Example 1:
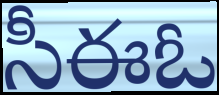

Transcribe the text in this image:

సీఈఓ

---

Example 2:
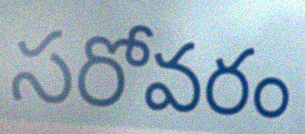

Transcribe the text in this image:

సరోవరం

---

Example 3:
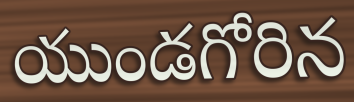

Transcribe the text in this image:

యుండగోరిన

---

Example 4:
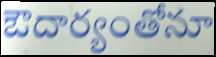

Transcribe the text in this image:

ఔదార్యంతోనూ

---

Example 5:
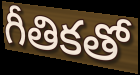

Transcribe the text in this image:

గీతికతో